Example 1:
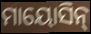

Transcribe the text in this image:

ମାୟୋସିନ୍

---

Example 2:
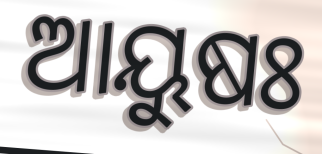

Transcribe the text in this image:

ଆୟୁଷଃ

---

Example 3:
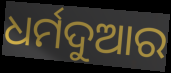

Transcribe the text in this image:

ଧର୍ମଦୁଆର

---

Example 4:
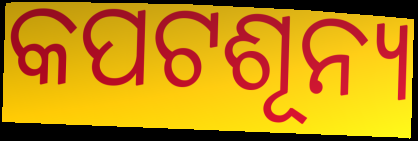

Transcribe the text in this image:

କପଟଶୂନ୍ୟ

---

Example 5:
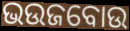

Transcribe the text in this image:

ଭଉଜବୋଉ